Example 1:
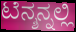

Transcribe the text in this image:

ಟೆನ್ಶನ್ನಲ್ಲಿ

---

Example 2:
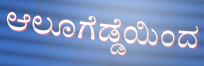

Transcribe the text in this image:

ಆಲೂಗೆಡ್ಡೆಯಿಂದ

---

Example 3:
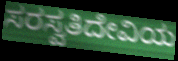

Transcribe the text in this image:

ಸರಸ್ವತಿದೇವಿಯ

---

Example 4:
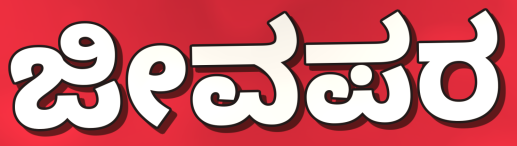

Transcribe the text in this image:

ಜೀವಪರ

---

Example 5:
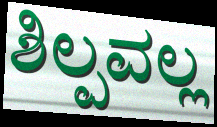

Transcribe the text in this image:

ಶಿಲ್ಪವಲ್ಲ